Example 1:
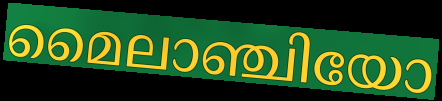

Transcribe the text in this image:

മൈലാഞ്ചിയോ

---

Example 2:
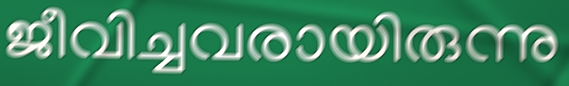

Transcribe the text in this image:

ജീവിച്ചവരായിരുന്നു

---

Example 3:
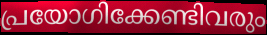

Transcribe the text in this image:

പ്രയോഗിക്കേണ്ടിവരും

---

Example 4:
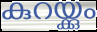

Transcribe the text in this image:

കുറയ്ക്കും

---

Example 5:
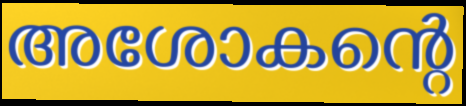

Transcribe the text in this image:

അശോകന്റെ